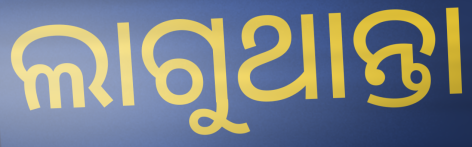
ଲାଗୁଥାନ୍ତା